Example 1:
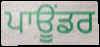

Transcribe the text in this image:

ਪਾਊਂਡਰ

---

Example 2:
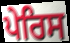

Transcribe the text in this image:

ਪੇਰਿਸ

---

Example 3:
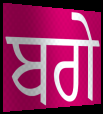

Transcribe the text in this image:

ਬਗੇ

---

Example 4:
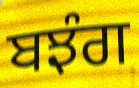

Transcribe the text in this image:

ਬਝੰਗ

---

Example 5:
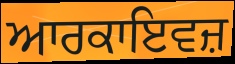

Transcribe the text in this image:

ਆਰਕਾਇਵਜ਼